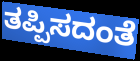
ತಪ್ಪಿಸದಂತೆ